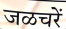
जळचरें